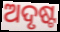
ଅଦୃଷ୍ଟ